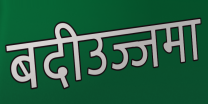
बदीउज्जमा